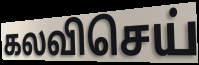
கலவிசெய்